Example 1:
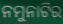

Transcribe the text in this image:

ନମୁନାଟିର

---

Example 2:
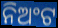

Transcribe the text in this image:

ନିଅଂଟ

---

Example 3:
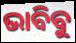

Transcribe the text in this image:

ଭାବିବୁ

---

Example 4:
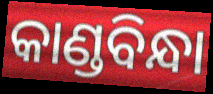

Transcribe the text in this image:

କାଣ୍ଡବିନ୍ଧା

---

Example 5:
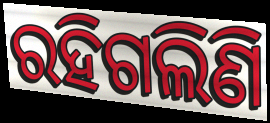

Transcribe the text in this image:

ରହିଗଲିଣି